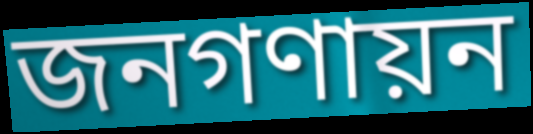
জনগণায়ন